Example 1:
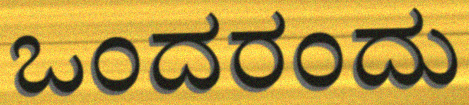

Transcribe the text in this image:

ಒಂದರಂದು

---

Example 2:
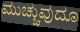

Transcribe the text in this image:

ಮುಚ್ಚುವುದೂ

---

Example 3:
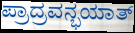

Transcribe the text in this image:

ಪ್ರಾದ್ರವನ್ಭಯಾತ್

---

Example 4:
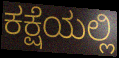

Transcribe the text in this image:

ಕಕ್ಷೆಯಲ್ಲಿ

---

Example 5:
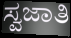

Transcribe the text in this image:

ಸ್ವಜಾತಿ